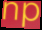
np